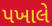
પખાલે